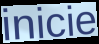
inicie